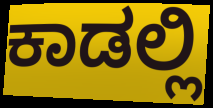
ಕಾಡಲ್ಲಿ